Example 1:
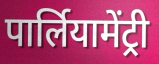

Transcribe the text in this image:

पार्लियामेंट्री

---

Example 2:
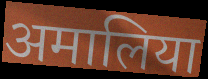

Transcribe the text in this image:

अमालिया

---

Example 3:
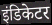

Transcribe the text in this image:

इंडिकेटर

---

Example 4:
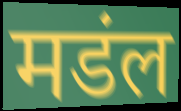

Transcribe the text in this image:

मडंल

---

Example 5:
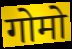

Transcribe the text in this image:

गोमो